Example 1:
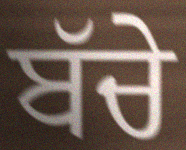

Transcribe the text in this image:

ਬੱਚੇ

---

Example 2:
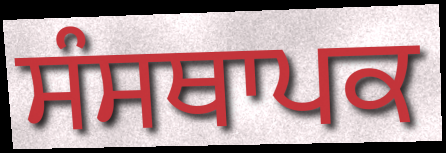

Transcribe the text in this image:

ਸੰਸਥਾਪਕ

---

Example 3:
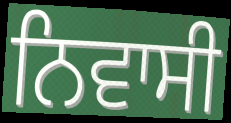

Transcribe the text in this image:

ਨਿਵਾਸੀ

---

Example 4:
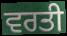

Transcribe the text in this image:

ਵਰਤੀ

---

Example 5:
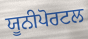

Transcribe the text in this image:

ਯੂਨੀਪੋਰਟਲ